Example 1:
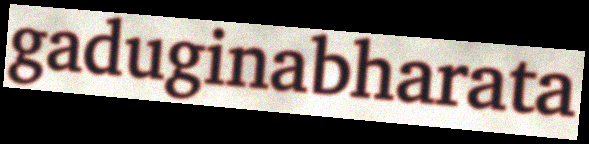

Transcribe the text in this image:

gaduginabharata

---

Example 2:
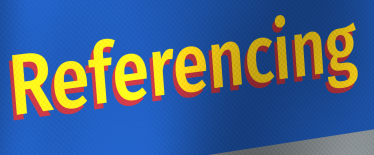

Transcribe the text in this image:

Referencing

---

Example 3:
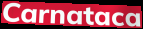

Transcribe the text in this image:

Carnataca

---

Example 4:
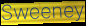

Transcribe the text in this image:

Sweeney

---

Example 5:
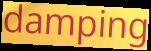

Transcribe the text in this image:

damping